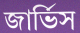
জার্ভিস